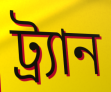
ট্র্যান